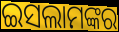
ଇସଲାମଙ୍କର